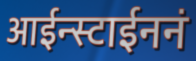
आईन्स्टाईननं